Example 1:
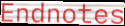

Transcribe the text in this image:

Endnotes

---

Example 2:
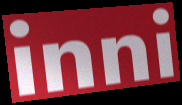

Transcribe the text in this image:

inni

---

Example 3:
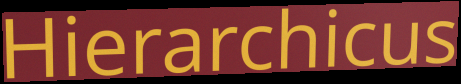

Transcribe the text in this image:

Hierarchicus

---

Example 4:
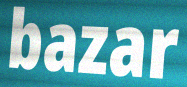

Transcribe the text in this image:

bazar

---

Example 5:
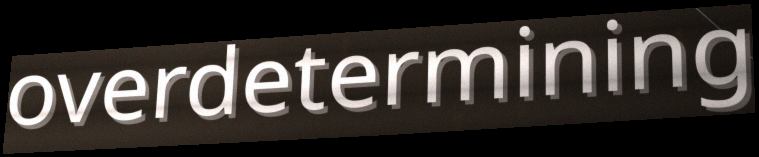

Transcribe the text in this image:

overdetermining